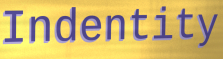
Indentity